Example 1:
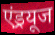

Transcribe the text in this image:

एंड्रयूज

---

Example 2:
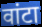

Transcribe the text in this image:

वांटा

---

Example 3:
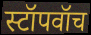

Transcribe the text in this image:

स्टॉपवॉच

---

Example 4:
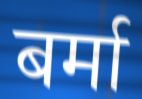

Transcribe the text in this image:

बर्मा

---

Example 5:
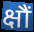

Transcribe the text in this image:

क्षौं